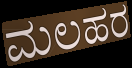
ಮಲಹರ